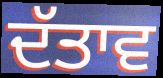
ਦੱਤਾਵ